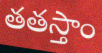
తతస్తాం